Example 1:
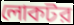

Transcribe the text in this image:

লোকটর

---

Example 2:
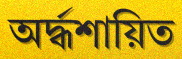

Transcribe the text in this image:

অর্দ্ধশায়িত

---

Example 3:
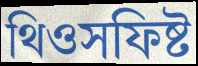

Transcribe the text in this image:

থিওসফিষ্ট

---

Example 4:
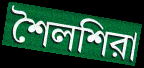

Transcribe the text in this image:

শৈলশিরা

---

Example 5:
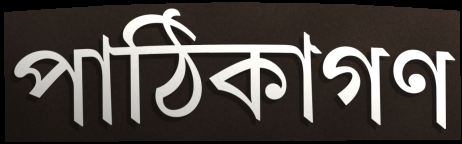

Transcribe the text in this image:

পাঠিকাগণ